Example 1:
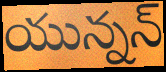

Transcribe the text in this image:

యున్నన్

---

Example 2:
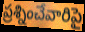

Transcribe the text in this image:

ప్రశ్నించేవారిపై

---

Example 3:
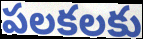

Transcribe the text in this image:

పలకలకు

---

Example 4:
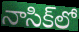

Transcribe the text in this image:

నాసిక్‌లో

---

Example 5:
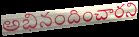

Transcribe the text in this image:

అభినందించారని